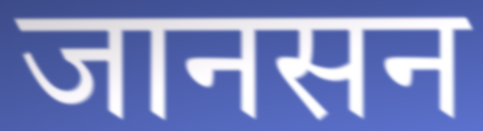
जानसन